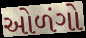
ઓળંગો